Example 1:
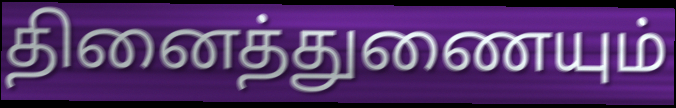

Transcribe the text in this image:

தினைத்துணையும்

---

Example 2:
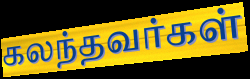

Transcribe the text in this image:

கலந்தவர்கள்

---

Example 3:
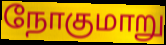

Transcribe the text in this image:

நோகுமாறு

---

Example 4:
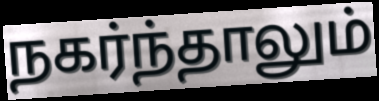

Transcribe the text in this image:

நகர்ந்தாலும்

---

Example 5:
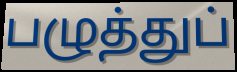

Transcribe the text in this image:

பழுத்துப்